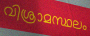
വിശ്രാമസ്ഥലം